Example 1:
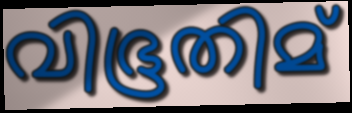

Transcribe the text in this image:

വിഭൂതിമ്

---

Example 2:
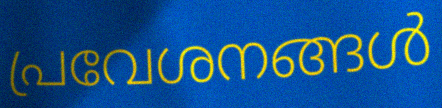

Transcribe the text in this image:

പ്രവേശനങ്ങൾ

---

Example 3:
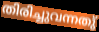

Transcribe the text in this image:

തിരിച്ചുവന്നതു്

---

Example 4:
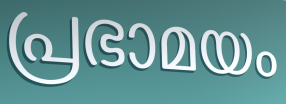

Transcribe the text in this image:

പ്രഭാമയം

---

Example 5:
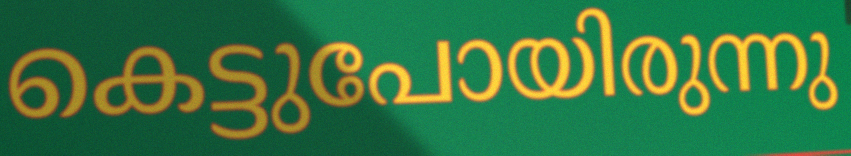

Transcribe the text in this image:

കെട്ടുപോയിരുന്നു